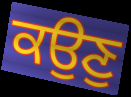
ਕਉਣੁ